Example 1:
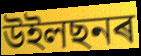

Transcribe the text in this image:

উইলছনৰ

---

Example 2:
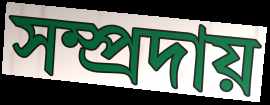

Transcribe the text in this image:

সম্প্ৰদায়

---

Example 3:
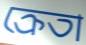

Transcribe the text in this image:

ক্ৰেতা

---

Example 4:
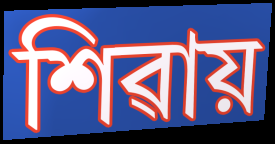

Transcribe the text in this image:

শিৱায়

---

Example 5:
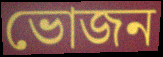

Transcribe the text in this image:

ভোজন